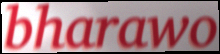
bharawo